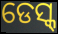
ଡେସ୍କ୍